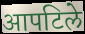
आपटिले